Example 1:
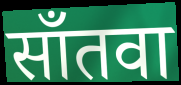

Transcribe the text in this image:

साँतवा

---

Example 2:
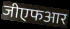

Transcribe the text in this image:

जीएफआर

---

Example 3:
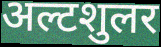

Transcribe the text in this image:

अल्टशुलर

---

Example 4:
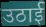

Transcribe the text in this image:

उठाई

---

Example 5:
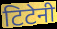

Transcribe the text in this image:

टिटेनी